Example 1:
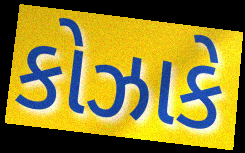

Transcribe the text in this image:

કોઝાકે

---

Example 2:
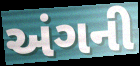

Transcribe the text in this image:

અંગની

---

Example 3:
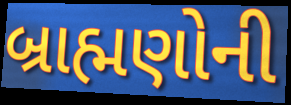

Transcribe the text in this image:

બ્રાહ્મણોની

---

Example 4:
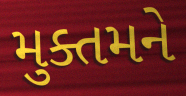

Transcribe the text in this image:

મુક્તમને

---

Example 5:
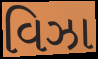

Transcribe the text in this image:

વિઝા